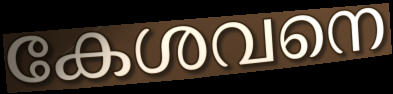
കേശവനെ